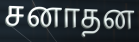
சனாதன